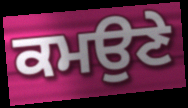
ਕਮਉਣੇ